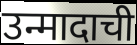
उन्मादाची